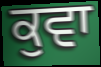
ਕੁਵਾ